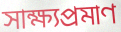
সাক্ষ্যপ্রমাণ